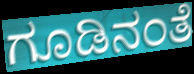
ಗೂಡಿನಂತೆ